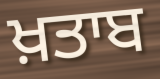
ਖ਼ਤਾਬ